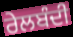
ਰੇਲਬੰਦੀ